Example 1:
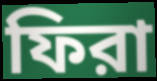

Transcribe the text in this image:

ফিরা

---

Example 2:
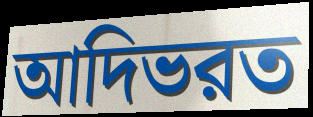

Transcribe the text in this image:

আদিভরত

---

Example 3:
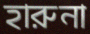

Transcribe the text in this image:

হারুনা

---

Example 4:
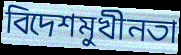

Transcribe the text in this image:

বিদেশমুখীনতা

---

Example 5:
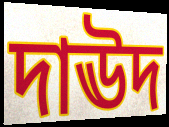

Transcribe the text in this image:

দাঊদ